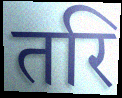
तरि